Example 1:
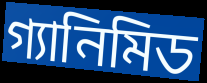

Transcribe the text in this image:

গ্যানিমিড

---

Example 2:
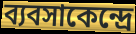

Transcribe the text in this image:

ব্যবসাকেন্দ্রে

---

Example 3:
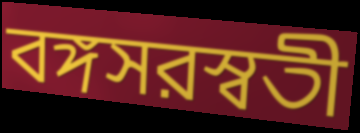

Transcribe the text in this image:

বঙ্গসরস্বতী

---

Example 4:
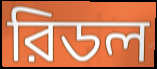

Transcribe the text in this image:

রিডল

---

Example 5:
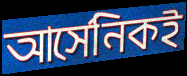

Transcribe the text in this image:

আর্সেনিকই